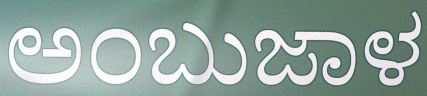
ಅಂಬುಜಾಳ